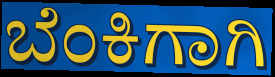
ಬೆಂಕಿಗಾಗಿ